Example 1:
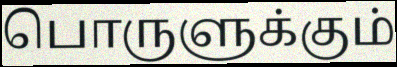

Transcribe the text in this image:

பொருளுக்கும்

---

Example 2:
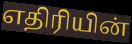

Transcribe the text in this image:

எதிரியின்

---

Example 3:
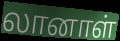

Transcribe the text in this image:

லானாள்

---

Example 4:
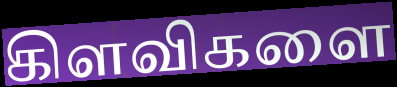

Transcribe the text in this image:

கிளவிகளை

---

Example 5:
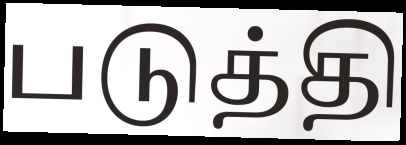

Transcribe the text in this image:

படுத்தி